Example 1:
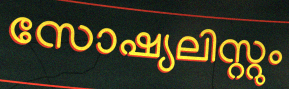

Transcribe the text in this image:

സോഷ്യലിസ്റ്റും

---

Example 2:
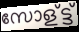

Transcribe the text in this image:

സോള്ട്ട്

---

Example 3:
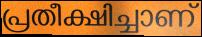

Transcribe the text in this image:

പ്രതീക്ഷിച്ചാണ്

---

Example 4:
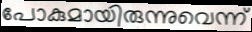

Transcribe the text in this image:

പോകുമായിരുന്നുവെന്ന്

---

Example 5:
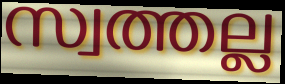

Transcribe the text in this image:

സ്വത്തല്ല